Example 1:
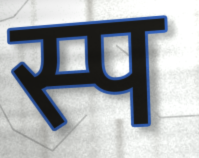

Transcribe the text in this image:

स्प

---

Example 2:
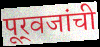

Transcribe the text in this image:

पूर्वजांची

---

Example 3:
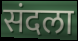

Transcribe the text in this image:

संदला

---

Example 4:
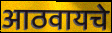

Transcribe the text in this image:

आठवायचे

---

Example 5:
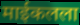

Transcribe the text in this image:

माईकलला